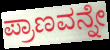
ಪ್ರಾಣವನ್ನೇ